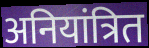
अनियांत्रित